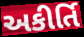
અકીર્તિ